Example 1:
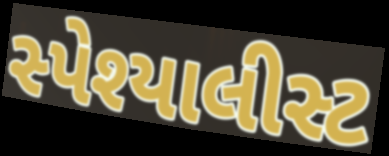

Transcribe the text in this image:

સ્પેશ્યાલીસ્ટ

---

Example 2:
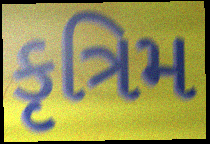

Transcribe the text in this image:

કૃત્રિમ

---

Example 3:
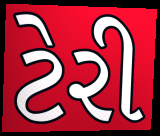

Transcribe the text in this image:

ટેરી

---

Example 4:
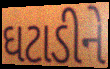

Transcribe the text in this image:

ઘટાડીને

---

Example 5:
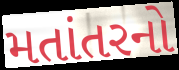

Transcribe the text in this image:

મતાંતરનો